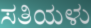
ಸತಿಯಳು